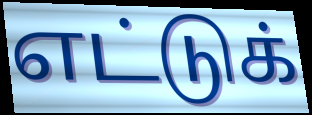
எட்டுக்